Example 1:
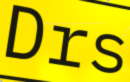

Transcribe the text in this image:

Drs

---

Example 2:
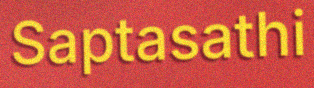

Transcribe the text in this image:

Saptasathi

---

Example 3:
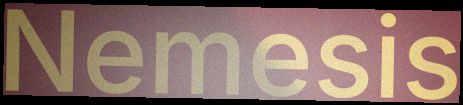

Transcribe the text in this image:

Nemesis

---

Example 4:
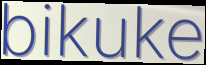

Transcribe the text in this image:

bikuke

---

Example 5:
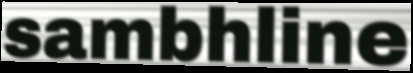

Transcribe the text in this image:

sambhline